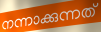
നന്നാക്കുന്നത്